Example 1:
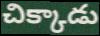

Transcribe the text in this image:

చిక్కాడు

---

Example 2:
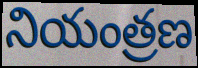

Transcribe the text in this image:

నియంత్రణ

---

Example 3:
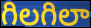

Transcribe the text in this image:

గిలగిలా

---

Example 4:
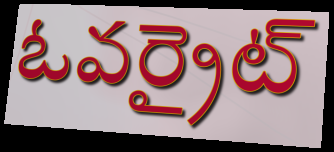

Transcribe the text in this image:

ఓవర్రైట్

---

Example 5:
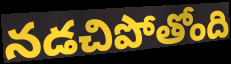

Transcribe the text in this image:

నడచిపోతోంది